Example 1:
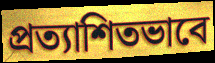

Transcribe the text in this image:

প্রত্যাশিতভাবে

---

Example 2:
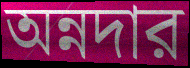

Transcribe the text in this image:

অন্নদার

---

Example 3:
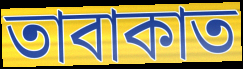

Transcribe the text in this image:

তাবাকাত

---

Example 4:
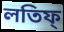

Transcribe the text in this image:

লতিফ্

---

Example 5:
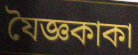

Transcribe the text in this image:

যৈজ্ঞকাকা